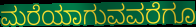
ಮರೆಯಾಗುವವರೆಗೂ